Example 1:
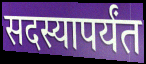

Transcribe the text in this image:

सदस्यापर्यंत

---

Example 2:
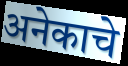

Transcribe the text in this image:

अनेकाचे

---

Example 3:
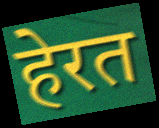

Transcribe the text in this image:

हेरत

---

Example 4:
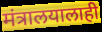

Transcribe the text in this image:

मंत्रालयालाही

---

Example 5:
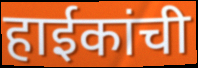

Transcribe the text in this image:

हाईकांची